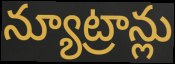
న్యూట్రాన్లు